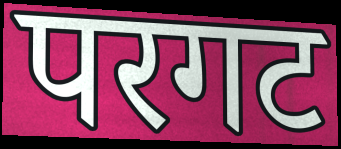
परगट